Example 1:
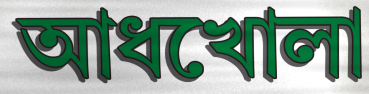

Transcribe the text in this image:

আধখোলা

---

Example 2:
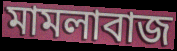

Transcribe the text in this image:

মামলাবাজ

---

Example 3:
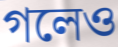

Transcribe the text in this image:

গলেও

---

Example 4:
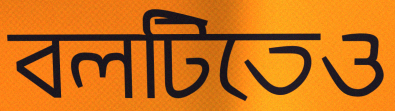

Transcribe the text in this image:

বলটিতেও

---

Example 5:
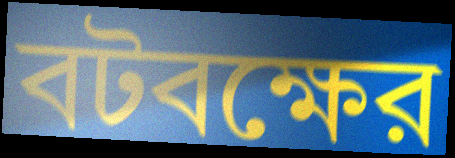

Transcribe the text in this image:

বটবক্ষের